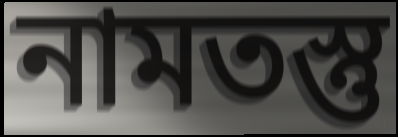
নামতস্তু